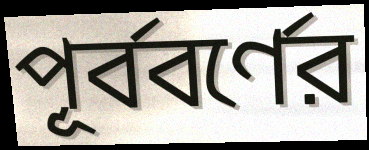
পূর্ববর্ণের